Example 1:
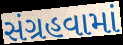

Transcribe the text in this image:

સંગ્રહવામાં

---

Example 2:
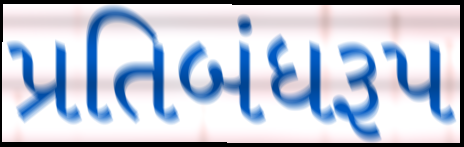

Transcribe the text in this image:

પ્રતિબંધરૂપ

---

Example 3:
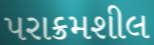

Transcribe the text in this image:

પરાક્રમશીલ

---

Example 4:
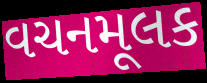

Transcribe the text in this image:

વચનમૂલક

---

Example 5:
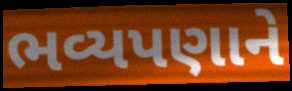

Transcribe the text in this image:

ભવ્યપણાને